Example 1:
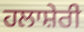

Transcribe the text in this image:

ਹਲਾਸ਼ੇਰੀ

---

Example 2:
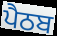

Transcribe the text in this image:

ਪੈਠਬ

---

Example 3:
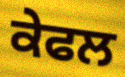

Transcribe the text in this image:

ਕੇਫਲ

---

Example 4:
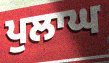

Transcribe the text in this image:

ਪੁਲਾਘ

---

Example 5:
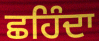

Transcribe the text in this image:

ਛਹਿੰਦਾ